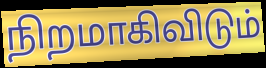
நிறமாகிவிடும்